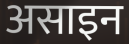
असाइन